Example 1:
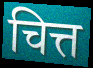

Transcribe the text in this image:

चित्त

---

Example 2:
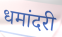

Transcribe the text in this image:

धमांदरी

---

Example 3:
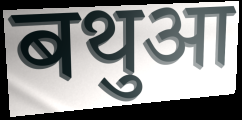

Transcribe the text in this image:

बथुआ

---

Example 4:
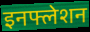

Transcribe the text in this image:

इनफ्लेशन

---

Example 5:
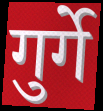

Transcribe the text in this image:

गुर्गे